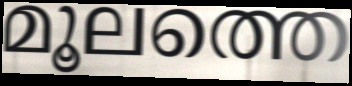
മൂലത്തെ